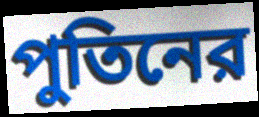
পুতিনের